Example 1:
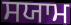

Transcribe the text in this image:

ਸਯਾਮ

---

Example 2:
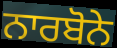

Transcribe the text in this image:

ਨਾਰਬੋਨੇ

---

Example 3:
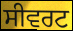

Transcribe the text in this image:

ਸੀਵਰਟ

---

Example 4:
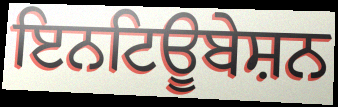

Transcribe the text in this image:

ਇਨਟਿਊਬੇਸ਼ਨ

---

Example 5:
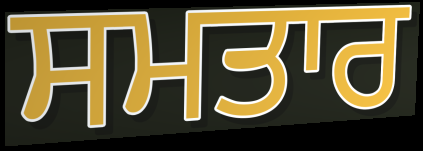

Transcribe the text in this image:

ਸਮਤਾਰ